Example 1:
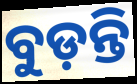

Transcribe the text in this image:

ବୁଡ଼ନ୍ତି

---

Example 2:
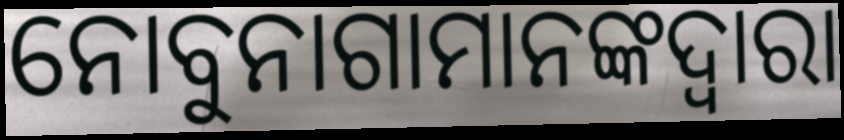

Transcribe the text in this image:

ନୋବୁନାଗାମାନଙ୍କଦ୍ୱାରା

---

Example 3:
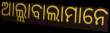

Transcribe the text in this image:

ଆଲ୍ଲାବାଲାମାନେ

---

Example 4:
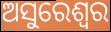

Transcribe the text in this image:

ଅସୁରେଶ୍ୱର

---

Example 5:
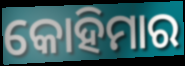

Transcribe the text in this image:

କୋହିମାର